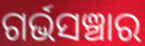
ଗର୍ଭସଞ୍ଚାର